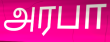
அரபா